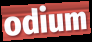
odium